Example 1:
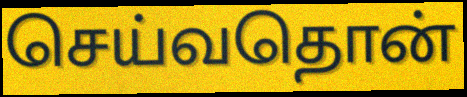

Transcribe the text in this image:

செய்வதொன்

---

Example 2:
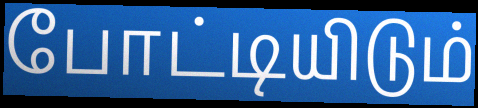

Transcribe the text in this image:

போட்டியிடும்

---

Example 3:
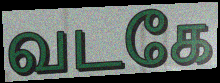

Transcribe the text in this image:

வடகே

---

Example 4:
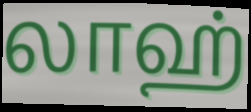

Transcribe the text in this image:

லாஹ்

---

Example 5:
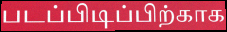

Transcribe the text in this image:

படப்பிடிப்பிற்காக